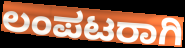
ಲಂಪಟರಾಗಿ